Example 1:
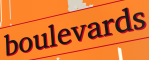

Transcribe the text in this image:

boulevards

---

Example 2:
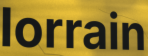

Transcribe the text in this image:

lorrain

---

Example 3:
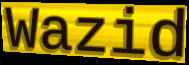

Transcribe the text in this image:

Wazid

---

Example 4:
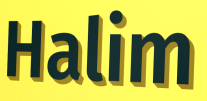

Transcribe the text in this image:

Halim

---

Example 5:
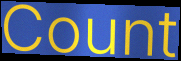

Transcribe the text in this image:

Count